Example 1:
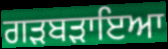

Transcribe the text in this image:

ਗੜਬੜਾਇਆ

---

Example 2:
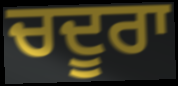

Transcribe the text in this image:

ਚਦੂਰਾ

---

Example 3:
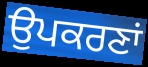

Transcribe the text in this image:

ਉਪਕਰਣਾਂ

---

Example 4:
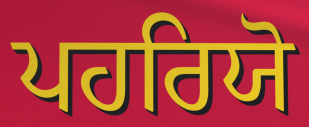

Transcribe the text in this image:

ਪਹਰਿਯੋ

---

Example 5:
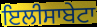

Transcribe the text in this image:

ਇਲੀਸਾਬੇਟਾ